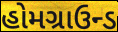
હોમગ્રાઉન્ડ